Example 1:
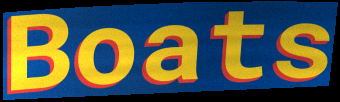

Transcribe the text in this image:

Boats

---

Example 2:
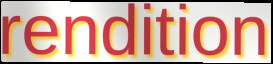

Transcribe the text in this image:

rendition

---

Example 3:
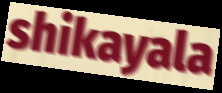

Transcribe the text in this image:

shikayala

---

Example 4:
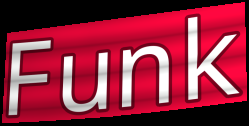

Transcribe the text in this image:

Funk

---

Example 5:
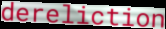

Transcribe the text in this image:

dereliction